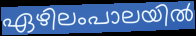
ഏഴിലംപാലയിൽ